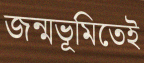
জন্মভূমিতেই